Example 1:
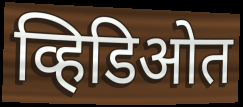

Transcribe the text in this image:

व्हिडिओत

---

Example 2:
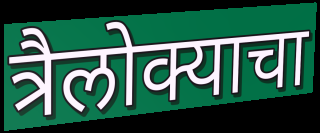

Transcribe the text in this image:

त्रैलोक्याचा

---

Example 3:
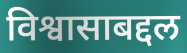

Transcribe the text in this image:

विश्वासाबद्दल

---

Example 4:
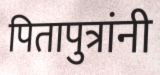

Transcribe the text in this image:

पितापुत्रांनी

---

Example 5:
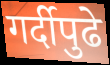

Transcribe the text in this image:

गर्दीपुढे